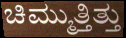
ಚಿಮ್ಮುತ್ತಿತ್ತು